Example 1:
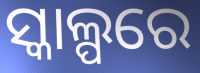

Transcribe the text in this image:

ସ୍କାଲ୍ପରେ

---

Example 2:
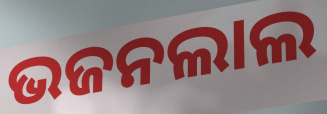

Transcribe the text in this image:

ଭଜନଲାଲ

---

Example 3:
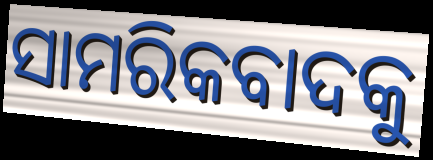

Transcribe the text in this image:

ସାମରିକବାଦକୁ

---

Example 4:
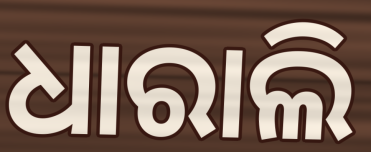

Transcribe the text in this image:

ଧାରାଲି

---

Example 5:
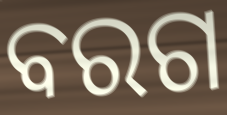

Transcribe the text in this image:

ବରଗ